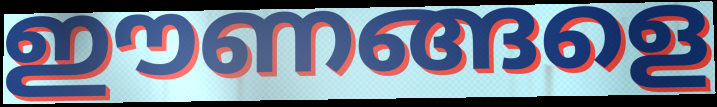
ഈണങ്ങളെ